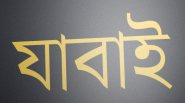
যাবাই